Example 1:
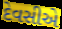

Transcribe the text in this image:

દેવસીએ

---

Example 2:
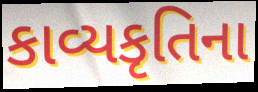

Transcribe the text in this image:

કાવ્યકૃતિના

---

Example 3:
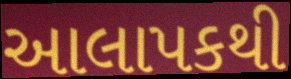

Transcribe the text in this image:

આલાપકથી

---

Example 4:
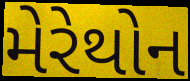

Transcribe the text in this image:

મેરેથોન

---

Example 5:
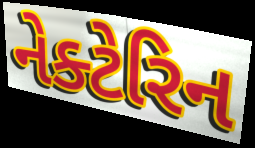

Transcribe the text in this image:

નેક્ટેરિન